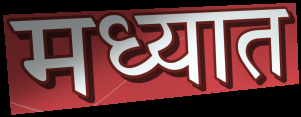
मध्यात